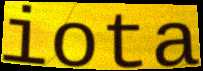
iota